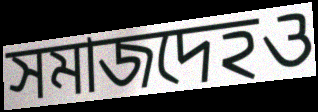
সমাজদেহও